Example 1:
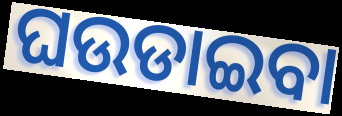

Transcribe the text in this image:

ଘଉଡାଇବା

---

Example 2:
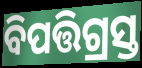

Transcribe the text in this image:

ବିପତ୍ତିଗ୍ରସ୍ତ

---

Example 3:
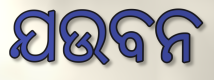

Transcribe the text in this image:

ଯଉବନ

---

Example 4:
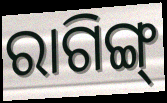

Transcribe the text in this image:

ରାଗିଙ୍ଗ୍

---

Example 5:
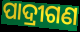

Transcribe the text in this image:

ପାଦ୍ରୀଗଣ